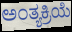
ಅಂತ್ಯಕ್ರಿಯೆ